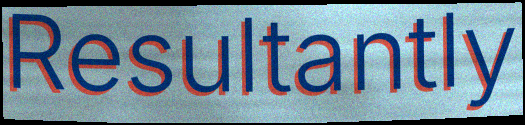
Resultantly